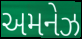
અમનેઝ